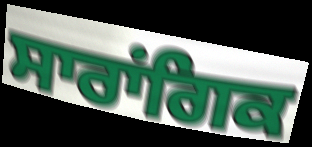
ਸਾਰਾਂਗਿਕ